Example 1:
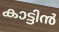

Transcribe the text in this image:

കാട്ടിൻ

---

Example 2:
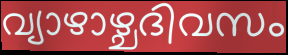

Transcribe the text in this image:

വ്യാഴാഴ്ചദിവസം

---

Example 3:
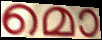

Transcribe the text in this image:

മൊ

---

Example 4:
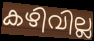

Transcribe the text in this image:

കഴിവില്ല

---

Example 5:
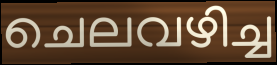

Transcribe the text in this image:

ചെലവഴിച്ച